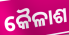
କୈଳାଶ